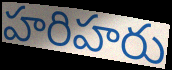
హరిహరు